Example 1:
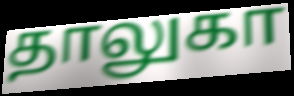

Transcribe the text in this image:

தாலுகா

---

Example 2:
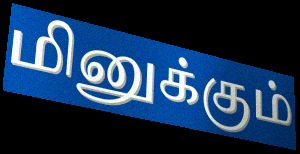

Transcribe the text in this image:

மினுக்கும்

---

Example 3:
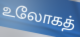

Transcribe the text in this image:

உலோகத்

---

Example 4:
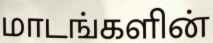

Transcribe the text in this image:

மாடங்களின்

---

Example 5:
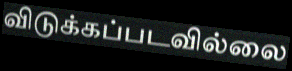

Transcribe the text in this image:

விடுக்கப்படவில்லை